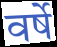
वर्षे